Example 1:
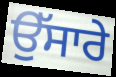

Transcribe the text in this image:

ਉੱਸਾਰੇ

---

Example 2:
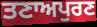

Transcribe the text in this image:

ਤਣਾਅਪੁਰਣ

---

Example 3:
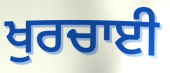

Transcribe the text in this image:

ਖੁਰਚਾਈ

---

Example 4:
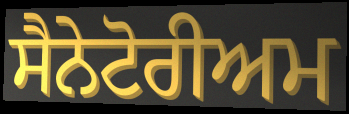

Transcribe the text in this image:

ਸੈਨੇਟੋਰੀਅਮ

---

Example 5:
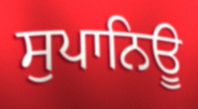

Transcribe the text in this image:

ਸੁਪਾਨਿਊ